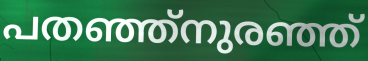
പതഞ്ഞ്നുരഞ്ഞ്